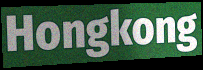
Hongkong